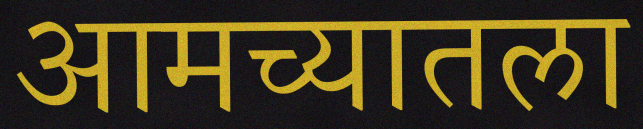
आमच्यातला